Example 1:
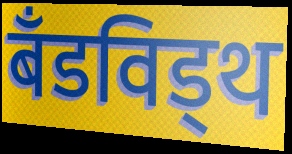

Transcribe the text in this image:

बँडविड्थ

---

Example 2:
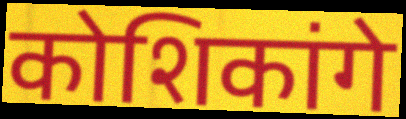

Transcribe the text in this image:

कोशिकांगे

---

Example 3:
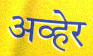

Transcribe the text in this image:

अव्हेर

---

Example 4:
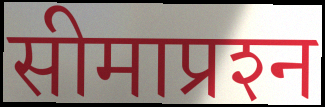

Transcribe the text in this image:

सीमाप्रश्न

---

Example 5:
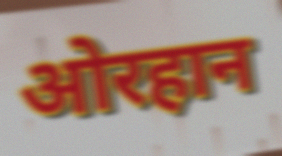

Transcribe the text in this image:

ओरहान